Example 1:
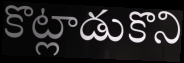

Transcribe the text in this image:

కొట్లాడుకొని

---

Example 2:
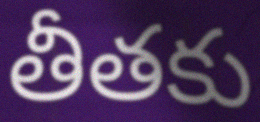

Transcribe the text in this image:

తీతకు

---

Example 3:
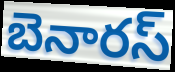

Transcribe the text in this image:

బెనారస్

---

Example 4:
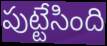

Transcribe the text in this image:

పుట్టేసింది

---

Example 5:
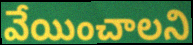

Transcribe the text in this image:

వేయించాలని